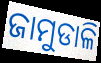
ଜାମୁଡାଳି